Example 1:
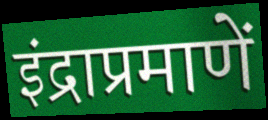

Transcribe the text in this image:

इंद्राप्रमाणें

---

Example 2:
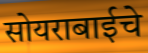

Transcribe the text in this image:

सोयराबाईचे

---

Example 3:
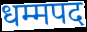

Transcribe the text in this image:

धम्मपद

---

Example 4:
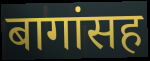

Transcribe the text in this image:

बागांसह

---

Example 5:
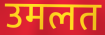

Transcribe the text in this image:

उमलत